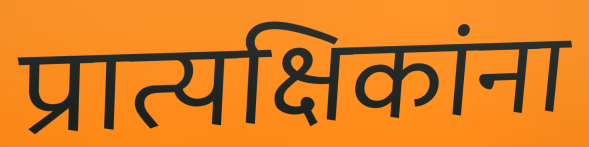
प्रात्यक्षिकांना